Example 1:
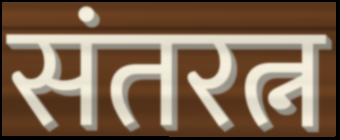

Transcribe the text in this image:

संतरत्न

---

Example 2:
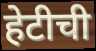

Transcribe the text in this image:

हेटीची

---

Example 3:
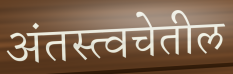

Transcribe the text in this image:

अंतस्त्वचेतील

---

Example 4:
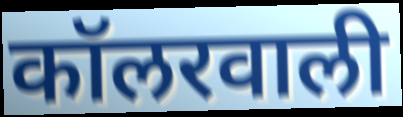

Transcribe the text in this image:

कॉलरवाली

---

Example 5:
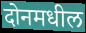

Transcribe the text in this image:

दोनमधील